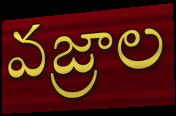
వజ్రాల